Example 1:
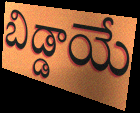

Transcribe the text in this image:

బిడ్డాయే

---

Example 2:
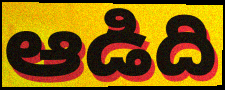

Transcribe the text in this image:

ఆడిది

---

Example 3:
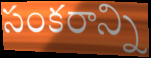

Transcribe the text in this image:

సంకరాన్ని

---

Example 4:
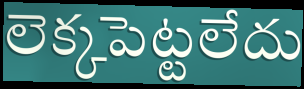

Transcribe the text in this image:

లెక్కపెట్టలేదు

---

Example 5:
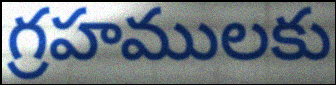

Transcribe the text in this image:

గ్రహములకు